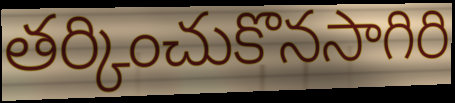
తర్కించుకొనసాగిరి